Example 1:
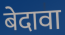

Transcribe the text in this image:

बेदावा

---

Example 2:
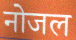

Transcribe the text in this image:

नोजल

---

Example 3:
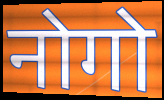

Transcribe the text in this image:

नोगो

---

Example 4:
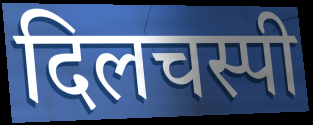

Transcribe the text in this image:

दिलचस्‍पी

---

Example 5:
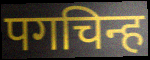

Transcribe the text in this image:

पगचिन्ह